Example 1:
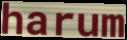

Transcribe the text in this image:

harum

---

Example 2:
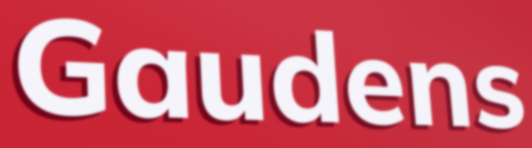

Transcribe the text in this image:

Gaudens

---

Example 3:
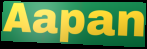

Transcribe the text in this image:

Aapan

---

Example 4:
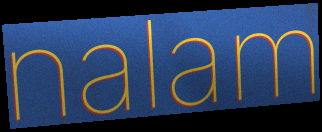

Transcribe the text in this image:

nalam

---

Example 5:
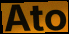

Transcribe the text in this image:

Ato